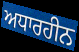
ਅਧਾਰਹੀਨ